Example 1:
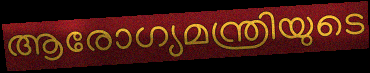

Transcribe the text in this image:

ആരോഗ്യമന്ത്രിയുടെ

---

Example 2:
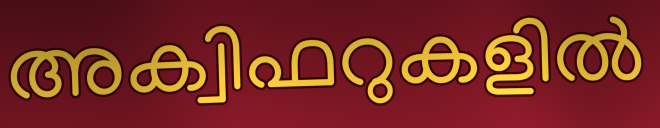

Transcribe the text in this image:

അക്വിഫറുകളിൽ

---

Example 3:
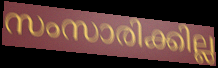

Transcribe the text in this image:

സംസാരിക്കില്ല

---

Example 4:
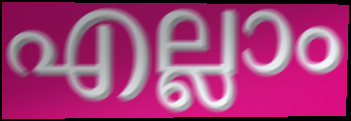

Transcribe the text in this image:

എല്ലാം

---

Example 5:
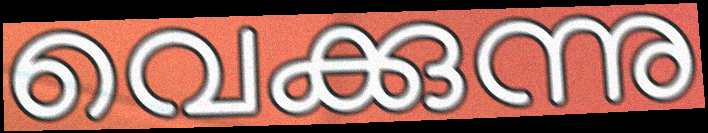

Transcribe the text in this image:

വെക്കുന്നു